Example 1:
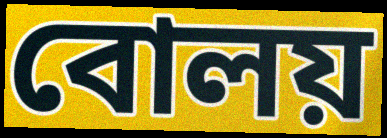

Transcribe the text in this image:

বোলয়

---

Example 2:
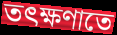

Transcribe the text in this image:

তৎক্ষণাতে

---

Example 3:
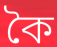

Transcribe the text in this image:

কৈ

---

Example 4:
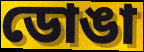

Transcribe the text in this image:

ডোঙা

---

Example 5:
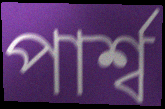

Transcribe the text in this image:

পাৰ্শ্ব